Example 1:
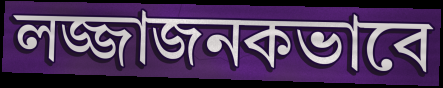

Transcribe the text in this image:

লজ্জাজনকভাবে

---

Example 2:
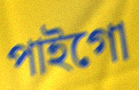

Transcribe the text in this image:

পাইগো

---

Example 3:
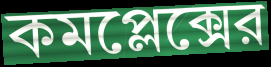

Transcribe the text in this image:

কমপ্লেক্সের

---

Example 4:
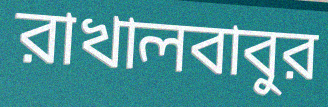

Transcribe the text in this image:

রাখালবাবুর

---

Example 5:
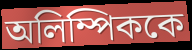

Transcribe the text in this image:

অলিম্পিককে